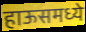
हाऊसमध्ये